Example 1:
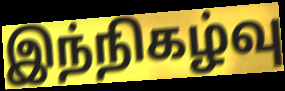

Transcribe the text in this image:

இந்நிகழ்வு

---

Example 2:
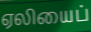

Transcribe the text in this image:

ஏலியைப்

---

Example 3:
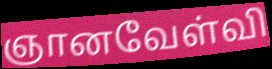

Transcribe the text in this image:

ஞானவேள்வி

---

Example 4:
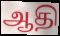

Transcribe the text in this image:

ஆதி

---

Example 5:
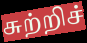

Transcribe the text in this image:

சுற்றிச்